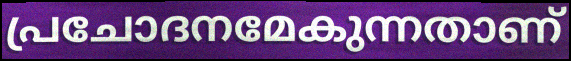
പ്രചോദനമേകുന്നതാണ്